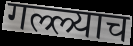
गल्ल्याच